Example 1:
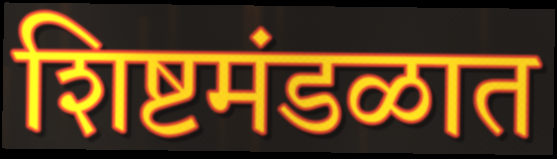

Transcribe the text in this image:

शिष्टमंडळात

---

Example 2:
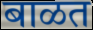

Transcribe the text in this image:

बाळत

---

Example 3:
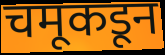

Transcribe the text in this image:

चमूकडून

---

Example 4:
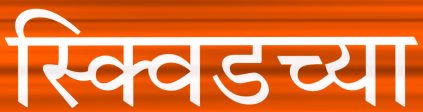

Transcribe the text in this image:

स्क्विडच्या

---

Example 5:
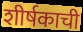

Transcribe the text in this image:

शीर्षकाची